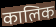
कालिक